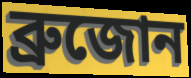
ব্রুজোন